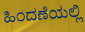
ಹಿಂದಣೆಯಲ್ಲಿ